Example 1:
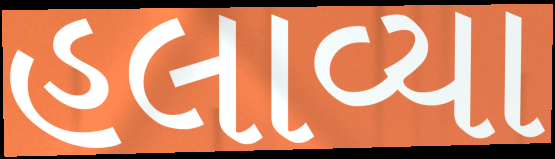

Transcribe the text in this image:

હલાવ્યા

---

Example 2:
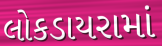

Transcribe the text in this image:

લોકડાયરામાં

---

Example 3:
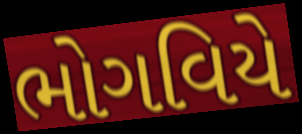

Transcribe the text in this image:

ભોગવિયે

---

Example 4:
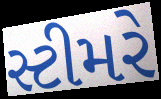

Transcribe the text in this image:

સ્ટીમરે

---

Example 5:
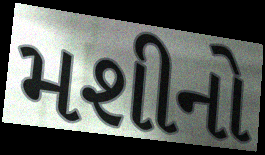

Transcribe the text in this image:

મશીનો